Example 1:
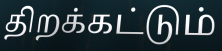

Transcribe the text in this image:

திறக்கட்டும்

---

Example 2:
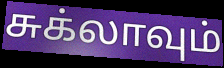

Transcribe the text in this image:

சுக்லாவும்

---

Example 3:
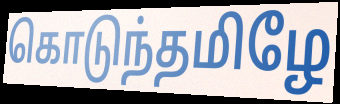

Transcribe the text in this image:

கொடுந்தமிழே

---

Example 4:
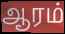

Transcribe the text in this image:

ஆரம்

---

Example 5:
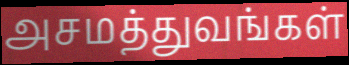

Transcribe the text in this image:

அசமத்துவங்கள்